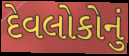
દેવલોકોનું